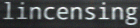
lincensing